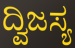
ದ್ವಿಜಸ್ಯ